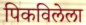
पिकविलेला